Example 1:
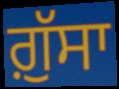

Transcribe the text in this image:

ਗ਼ੁੱਸਾ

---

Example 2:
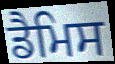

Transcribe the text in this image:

ਡੈਮਿਸ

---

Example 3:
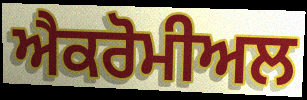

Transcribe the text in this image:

ਐਕਰੋਮੀਅਲ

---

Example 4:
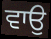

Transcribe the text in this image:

ਵਾਉ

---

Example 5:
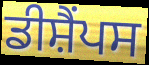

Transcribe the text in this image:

ਡੀਸ਼ੈਂਪਸ